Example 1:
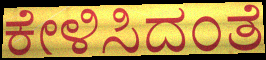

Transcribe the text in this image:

ಕೇಳಿಸಿದಂತೆ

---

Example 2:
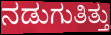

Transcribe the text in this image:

ನಡುಗುತಿತ್ತು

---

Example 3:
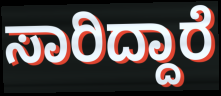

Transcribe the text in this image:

ಸಾರಿದ್ದಾರೆ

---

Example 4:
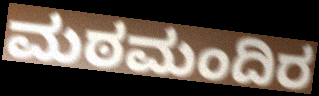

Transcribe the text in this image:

ಮಠಮಂದಿರ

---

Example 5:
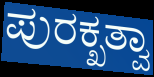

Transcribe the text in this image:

ಪುರಕ್ಖತ್ವಾ